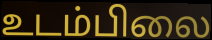
உடம்பிலை